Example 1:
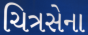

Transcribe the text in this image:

ચિત્રસેના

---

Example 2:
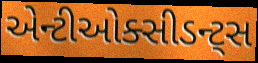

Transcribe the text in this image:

એન્ટીઓક્સીડન્ટ્સ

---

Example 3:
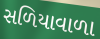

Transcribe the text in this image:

સળિયાવાળા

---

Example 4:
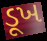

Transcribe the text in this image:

ડૂખ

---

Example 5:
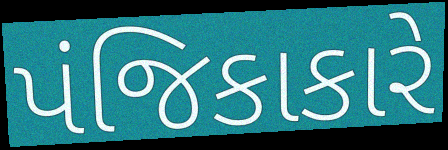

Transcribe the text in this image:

પંજિકાકારે